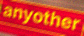
anyother